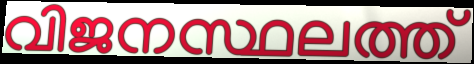
വിജനസ്ഥലത്ത്